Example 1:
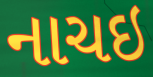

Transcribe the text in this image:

નાચઇ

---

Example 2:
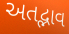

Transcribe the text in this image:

અતદ્ભાવ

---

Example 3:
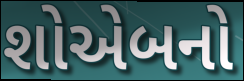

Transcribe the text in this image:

શોએબનો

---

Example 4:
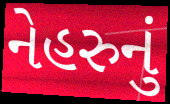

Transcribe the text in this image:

નેહરુનું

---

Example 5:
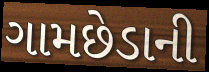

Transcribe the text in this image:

ગામછેડાની